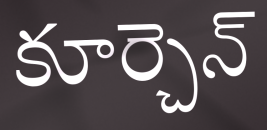
కూర్చెన్